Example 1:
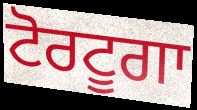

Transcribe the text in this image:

ਟੋਰਟੂਗਾ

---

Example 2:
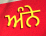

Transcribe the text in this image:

ਅੰਨੇ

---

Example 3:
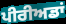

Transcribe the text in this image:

ਪੀਰੀਅਡਾਂ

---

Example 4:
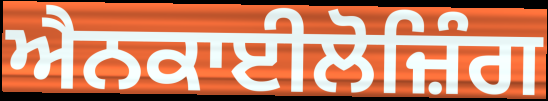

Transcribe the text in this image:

ਐਨਕਾਈਲੋਜ਼ਿੰਗ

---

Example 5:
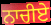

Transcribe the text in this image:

ਨਾਚੀਏ